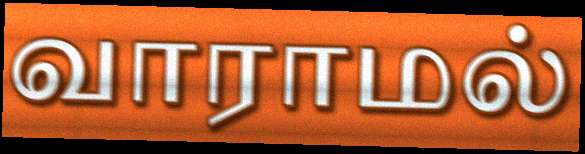
வாராமல்